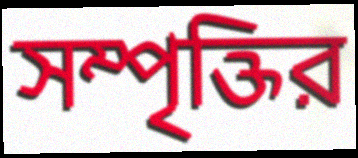
সম্পৃক্তির